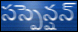
సస్పెన్షన్